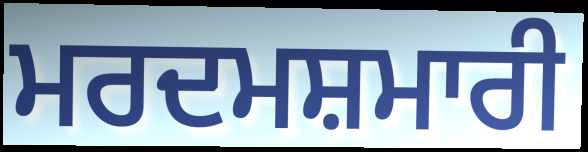
ਮਰਦਮਸ਼ਮਾਰੀ